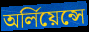
অর্লিয়েন্সে